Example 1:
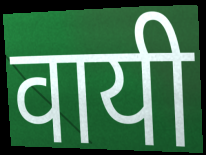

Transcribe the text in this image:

वायी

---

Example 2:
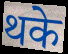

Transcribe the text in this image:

थके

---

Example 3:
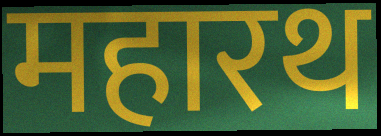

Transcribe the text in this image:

महारथ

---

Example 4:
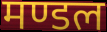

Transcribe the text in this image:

मण्डल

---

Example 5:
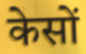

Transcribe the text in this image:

केसों